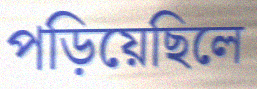
পড়িয়েছিলে